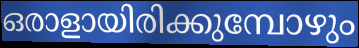
ഒരാളായിരിക്കുമ്പോഴും